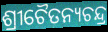
ଶ୍ରୀଚୈତନ୍ୟଚନ୍ଦ୍ର